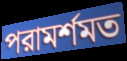
পরামর্শমত